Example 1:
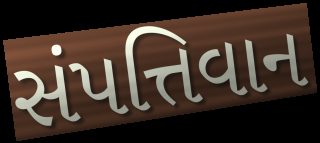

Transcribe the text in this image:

સંપત્તિવાન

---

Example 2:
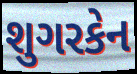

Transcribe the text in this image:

શુગરકેન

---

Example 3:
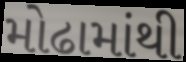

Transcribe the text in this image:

મોઢામાંથી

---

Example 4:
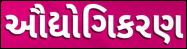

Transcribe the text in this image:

ઔદ્યોગિકરણ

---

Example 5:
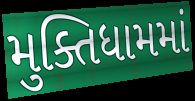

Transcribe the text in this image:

મુક્તિધામમાં